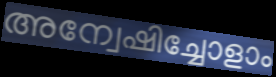
അന്വേഷിച്ചോളാം